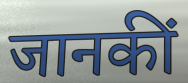
जानकीं